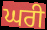
ਘਰੀ